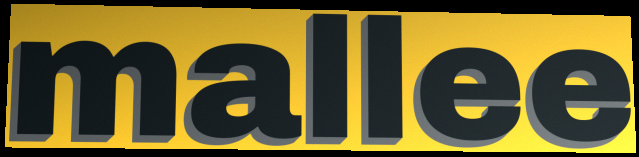
mallee